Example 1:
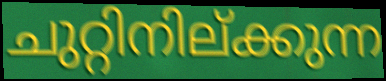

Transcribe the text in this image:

ചുറ്റിനില്ക്കുന്ന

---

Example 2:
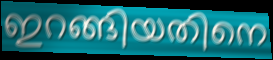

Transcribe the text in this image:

ഇറങ്ങിയതിനെ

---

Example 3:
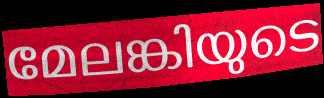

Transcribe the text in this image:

മേലങ്കിയുടെ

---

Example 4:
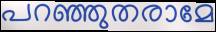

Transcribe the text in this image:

പറഞ്ഞുതരാമേ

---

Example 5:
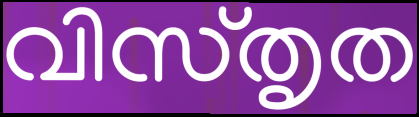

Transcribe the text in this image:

വിസ്തൃത